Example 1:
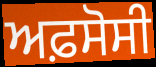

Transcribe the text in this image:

ਅਫ਼ਸੋਸੀ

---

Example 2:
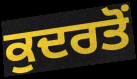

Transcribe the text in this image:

ਕੁਦਰਤੋਂ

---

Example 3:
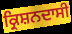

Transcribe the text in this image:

ਕ੍ਰਿਸ਼ਨਦਾਸੀ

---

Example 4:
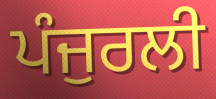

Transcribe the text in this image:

ਪੰਜੁਰਲੀ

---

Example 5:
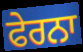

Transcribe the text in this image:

ਫੇਰਨਾ